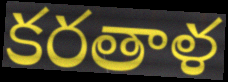
కరతాళ